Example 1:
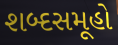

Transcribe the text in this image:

શબ્દસમૂહો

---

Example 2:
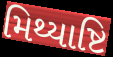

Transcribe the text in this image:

મિથ્યાષ્ટિ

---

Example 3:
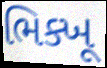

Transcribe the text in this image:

ભિક્ખૂ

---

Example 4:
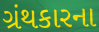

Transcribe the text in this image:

ગ્રંથકારના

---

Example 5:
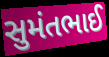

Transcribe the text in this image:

સુમંતભાઈ